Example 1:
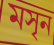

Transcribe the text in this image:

মসৃন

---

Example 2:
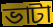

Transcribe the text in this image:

ভাটা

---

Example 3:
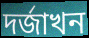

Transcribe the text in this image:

দৰ্জাখন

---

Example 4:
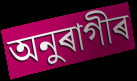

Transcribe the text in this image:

অনুৰাগীৰ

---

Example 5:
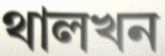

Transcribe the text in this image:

থালখন